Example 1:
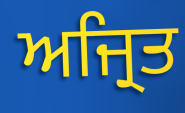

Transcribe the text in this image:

ਅਜ੍ਰਿਤ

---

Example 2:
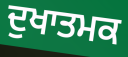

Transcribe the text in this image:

ਦੁਖਾਤਮਕ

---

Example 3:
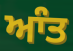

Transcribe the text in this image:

ਆੰਤ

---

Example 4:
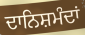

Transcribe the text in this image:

ਦਾਨਿਸ਼ਮੰਦਾਂ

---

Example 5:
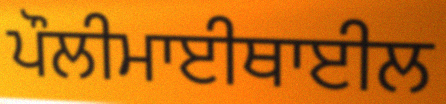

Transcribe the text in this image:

ਪੌਲੀਮਾਈਥਾਈਲ